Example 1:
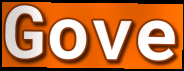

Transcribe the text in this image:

Gove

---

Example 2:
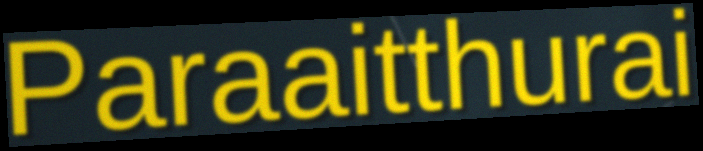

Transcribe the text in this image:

Paraaitthurai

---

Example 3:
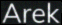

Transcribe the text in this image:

Arek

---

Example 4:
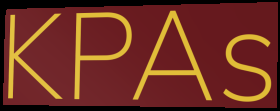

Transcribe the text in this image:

KPAs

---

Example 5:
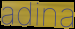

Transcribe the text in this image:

adina